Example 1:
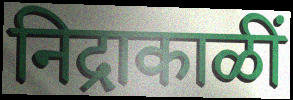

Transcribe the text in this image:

निद्राकाळीं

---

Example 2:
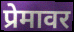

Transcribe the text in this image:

प्रेमावर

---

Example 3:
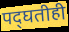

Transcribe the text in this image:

पद्घतीही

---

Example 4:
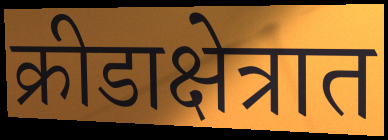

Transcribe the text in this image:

क्रीडाक्षेत्रात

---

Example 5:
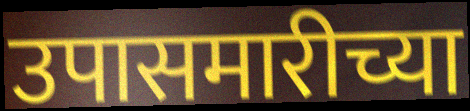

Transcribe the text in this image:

उपासमारीच्या